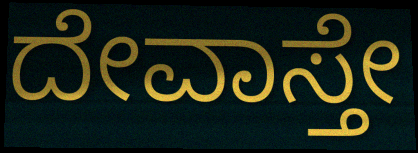
ದೇವಾಸ್ತೇ